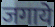
जगाये